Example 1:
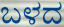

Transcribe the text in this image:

ಬಳದ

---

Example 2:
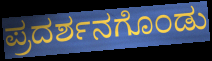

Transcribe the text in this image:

ಪ್ರದರ್ಶನಗೊಂಡು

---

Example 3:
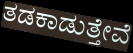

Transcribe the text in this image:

ತಡಕಾಡುತ್ತೇವೆ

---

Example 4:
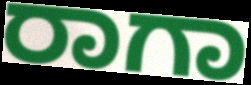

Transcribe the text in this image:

ರಾಗಾ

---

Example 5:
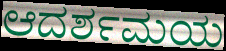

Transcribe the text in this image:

ಆದರ್ಶಮಯ